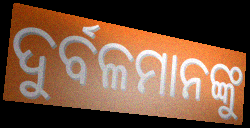
ଦୁର୍ବଳମାନଙ୍କୁ